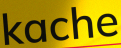
kache